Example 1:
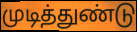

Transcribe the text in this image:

முடித்துண்டு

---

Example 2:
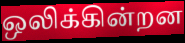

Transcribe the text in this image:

ஒலிக்கின்றன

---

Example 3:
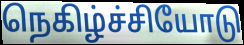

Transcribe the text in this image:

நெகிழ்ச்சியோடு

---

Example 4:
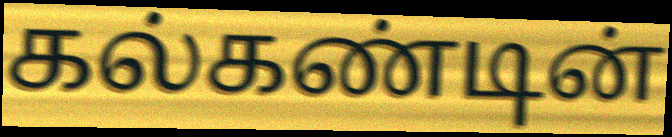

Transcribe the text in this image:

கல்கண்டின்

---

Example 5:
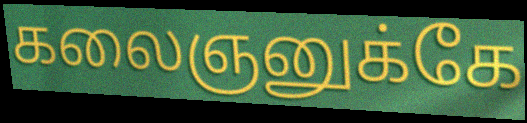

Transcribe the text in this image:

கலைஞனுக்கே